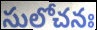
సులోచనః